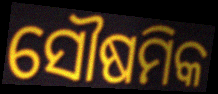
ସୌଷମିକ